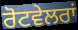
ਰੋਟਵੇਲਰਾਂ